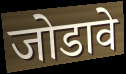
जोडावे